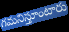
గమనిస్తూంటారు